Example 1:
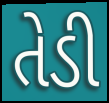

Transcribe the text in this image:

તેડી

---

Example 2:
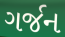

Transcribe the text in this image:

ગર્જન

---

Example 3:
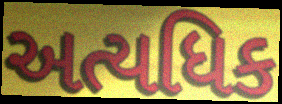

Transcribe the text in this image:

અત્યધિક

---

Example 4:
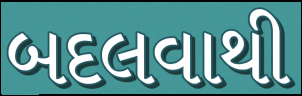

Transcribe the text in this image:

બદલવાથી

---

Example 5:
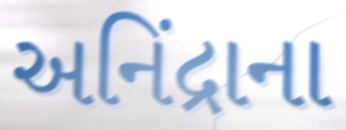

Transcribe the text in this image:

અનિંદ્રાના